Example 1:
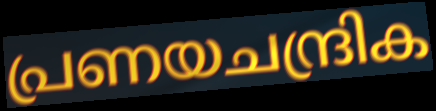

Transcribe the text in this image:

പ്രണയചന്ദ്രിക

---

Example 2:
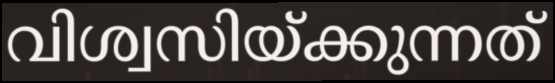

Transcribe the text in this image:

വിശ്വസിയ്ക്കുന്നത്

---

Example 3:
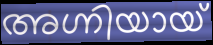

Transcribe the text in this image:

അഗ്നിയായ്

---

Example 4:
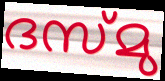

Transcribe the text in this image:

ദസ്മു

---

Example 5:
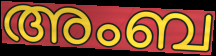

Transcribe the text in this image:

അംബ